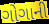
ગોગાની